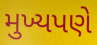
મુખ્યપણે